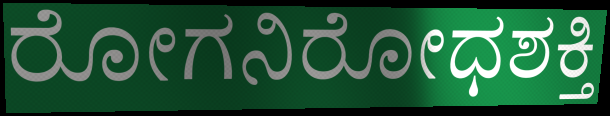
ರೋಗನಿರೋಧಶಕ್ತಿ